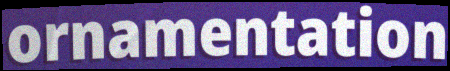
ornamentation